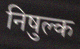
निषुल्क